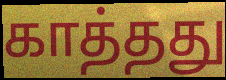
காத்தது